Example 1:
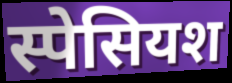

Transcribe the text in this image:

स्पेसियश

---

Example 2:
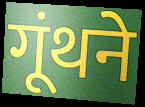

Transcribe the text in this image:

गूंथने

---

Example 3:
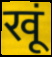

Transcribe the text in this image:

खूं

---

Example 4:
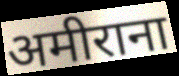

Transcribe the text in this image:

अमीराना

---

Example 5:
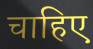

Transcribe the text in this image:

चाहिए